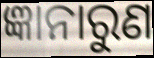
ଜ୍ଞାନାରୁଣ